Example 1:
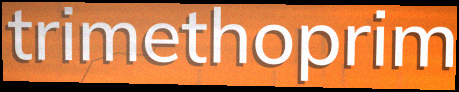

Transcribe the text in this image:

trimethoprim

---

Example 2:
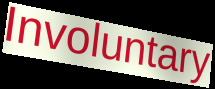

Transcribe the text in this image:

Involuntary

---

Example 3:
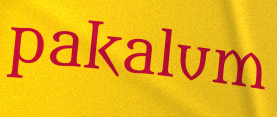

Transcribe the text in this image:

pakalum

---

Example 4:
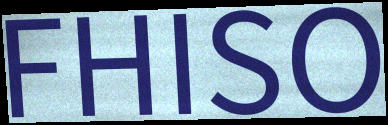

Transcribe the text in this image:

FHISO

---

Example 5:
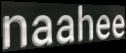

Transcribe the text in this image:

naahee